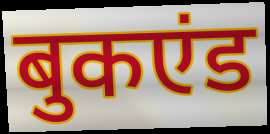
बुकएंड